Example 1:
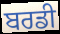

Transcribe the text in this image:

ਬਰਡੀ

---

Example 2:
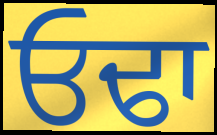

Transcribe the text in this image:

ਓਢਾ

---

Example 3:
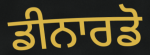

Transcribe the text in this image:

ਡੀਨਾਰਡੋ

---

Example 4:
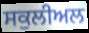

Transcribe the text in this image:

ਸਕੁਲੀਅਲ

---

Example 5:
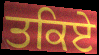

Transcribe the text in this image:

ਤਕਿਏ